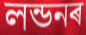
লন্ডনৰ